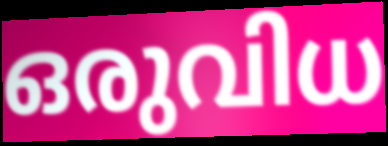
ഒരുവിധ